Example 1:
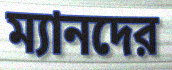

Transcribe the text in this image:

ম্যানদের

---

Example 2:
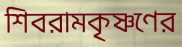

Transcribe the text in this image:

শিবরামকৃষ্ণণের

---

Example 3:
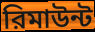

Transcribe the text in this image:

রিমাউন্ট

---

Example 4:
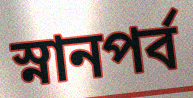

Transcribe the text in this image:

স্নানপর্ব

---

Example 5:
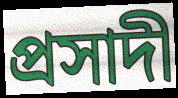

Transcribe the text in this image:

প্রসাদী